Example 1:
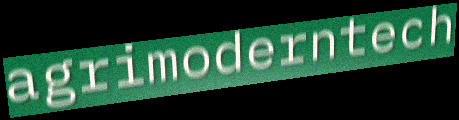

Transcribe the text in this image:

agrimoderntech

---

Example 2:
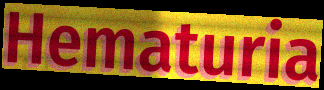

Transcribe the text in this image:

Hematuria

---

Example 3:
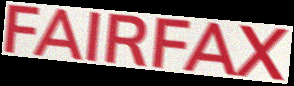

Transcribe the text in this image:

FAIRFAX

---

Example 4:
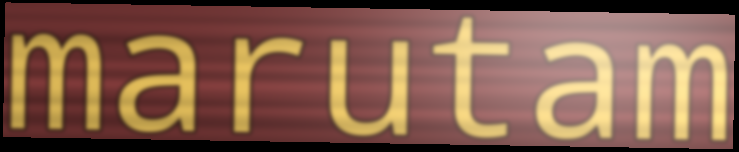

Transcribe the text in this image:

marutam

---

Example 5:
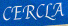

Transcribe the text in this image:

CERCLA